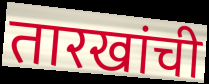
तारखांची